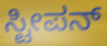
ಸ್ಟೀಪನ್